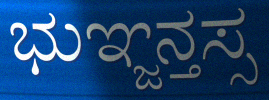
ಭುಞ್ಜನ್ತಸ್ಸ